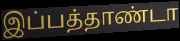
இப்பத்தாண்டா